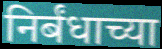
निर्बंधाच्या